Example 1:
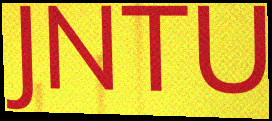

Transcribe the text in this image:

JNTU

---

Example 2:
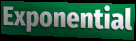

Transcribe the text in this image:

Exponential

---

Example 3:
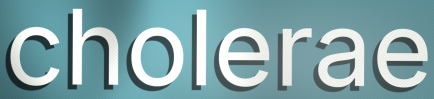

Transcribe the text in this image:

cholerae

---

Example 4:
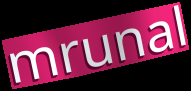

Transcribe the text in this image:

mrunal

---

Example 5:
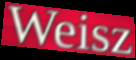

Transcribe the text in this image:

Weisz